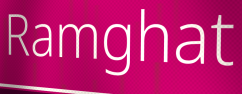
Ramghat